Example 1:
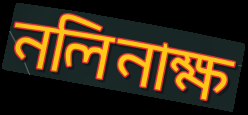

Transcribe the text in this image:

নলিনাক্ষ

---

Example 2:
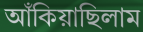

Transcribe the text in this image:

আঁকিয়াছিলাম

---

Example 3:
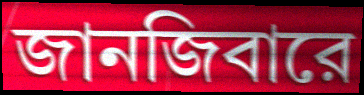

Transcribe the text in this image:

জানজিবারে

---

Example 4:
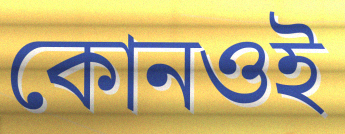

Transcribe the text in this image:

কোনওই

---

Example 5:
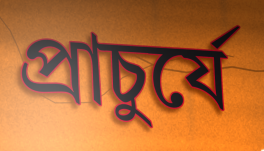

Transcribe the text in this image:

প্রাচুর্যে